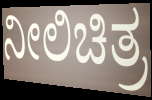
ನೀಲಿಚಿತ್ರ